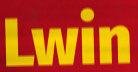
Lwin